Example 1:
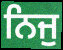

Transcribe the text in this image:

ਨਿਜੁ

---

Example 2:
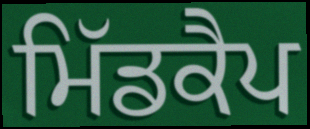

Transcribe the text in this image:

ਮਿੱਡਕੈਪ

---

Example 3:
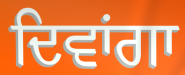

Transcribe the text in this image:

ਦਿਵਾਂਗਾ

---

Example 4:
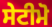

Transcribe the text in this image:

ਸੇਟੀਮੋ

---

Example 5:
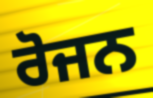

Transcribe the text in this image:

ਰੋਜਨ